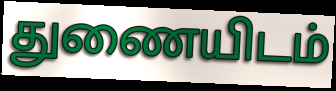
துணையிடம்